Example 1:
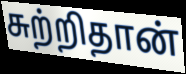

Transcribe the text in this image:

சுற்றிதான்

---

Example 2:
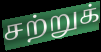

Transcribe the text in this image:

சற்றுக்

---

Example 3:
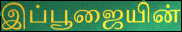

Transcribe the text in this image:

இப்பூஜையின்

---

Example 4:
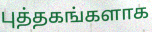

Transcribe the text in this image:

புத்தகங்களாக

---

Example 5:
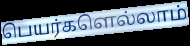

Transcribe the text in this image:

பெயர்களெல்லாம்